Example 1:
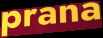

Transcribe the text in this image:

prana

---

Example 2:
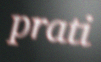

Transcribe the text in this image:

prati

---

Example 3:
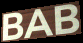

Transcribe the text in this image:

BAB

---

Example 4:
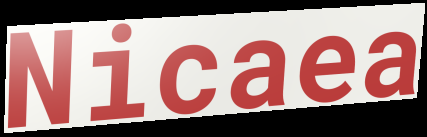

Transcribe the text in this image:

Nicaea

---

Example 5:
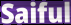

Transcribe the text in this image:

Saiful